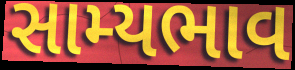
સામ્યભાવ